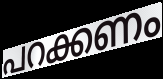
പറക്കണം